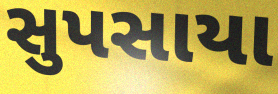
સુપસાયા